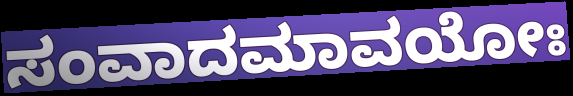
ಸಂವಾದಮಾವಯೋಃ